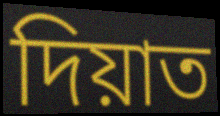
দিয়াত